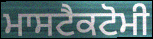
ਮਾਸਟੈਕਟੋਮੀ